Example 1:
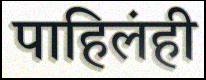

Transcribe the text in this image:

पाहिलंही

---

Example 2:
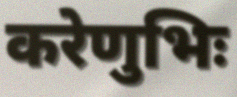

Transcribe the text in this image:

करेणुभिः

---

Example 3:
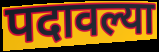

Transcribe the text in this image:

पदावल्या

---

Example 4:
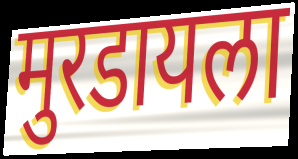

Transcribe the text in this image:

मुरडायला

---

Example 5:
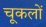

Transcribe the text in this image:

चूकलों